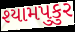
શ્યામપુકુર